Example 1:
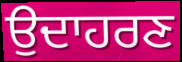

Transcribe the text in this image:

ਉਦਾਹਰਣ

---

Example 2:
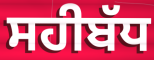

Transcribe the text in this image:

ਸਹੀਬੱਧ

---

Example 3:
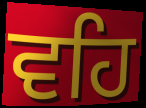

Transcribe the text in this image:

ਵਹਿ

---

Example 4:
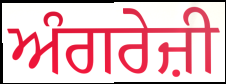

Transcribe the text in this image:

ਅੰਗਰੇਜ਼ੀ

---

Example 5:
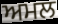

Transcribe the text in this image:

ਅਮਲ